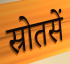
स्रोतसें